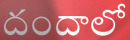
దందాలో